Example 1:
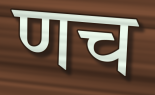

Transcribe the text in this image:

णच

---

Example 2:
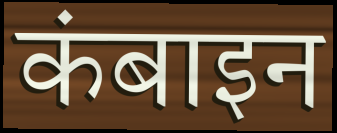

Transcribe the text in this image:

कंबाइन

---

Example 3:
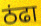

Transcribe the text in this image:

ठंढा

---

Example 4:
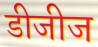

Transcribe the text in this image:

डीजीज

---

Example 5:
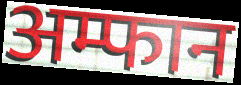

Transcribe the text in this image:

अम्फान